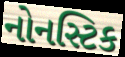
નોનસ્ટિક